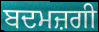
ਬਦਮਜ਼ਗੀ